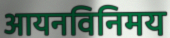
आयनविनिमय